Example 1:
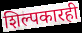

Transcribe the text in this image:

शिल्पकारही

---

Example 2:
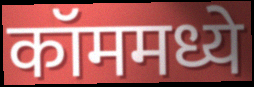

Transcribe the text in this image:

कॉममध्ये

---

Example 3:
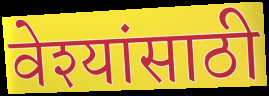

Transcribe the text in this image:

वेश्यांसाठी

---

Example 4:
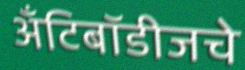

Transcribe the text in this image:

अँटिबॉडीजचे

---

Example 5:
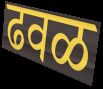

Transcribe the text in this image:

ढवळ